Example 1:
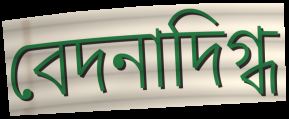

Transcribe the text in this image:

বেদনাদিগ্ধ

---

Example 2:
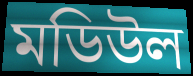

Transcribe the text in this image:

মডিউল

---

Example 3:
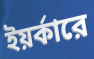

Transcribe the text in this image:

ইয়র্কারে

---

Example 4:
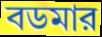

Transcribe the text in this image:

বডমার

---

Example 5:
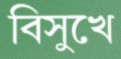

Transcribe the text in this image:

বিসুখে